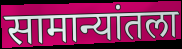
सामान्यांतला